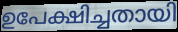
ഉപേക്ഷിച്ചതായി